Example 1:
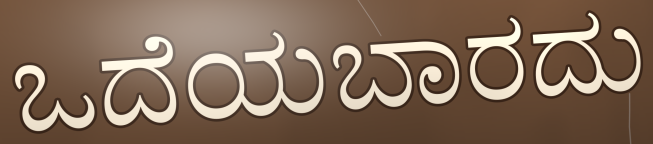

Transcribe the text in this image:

ಒದೆಯಬಾರದು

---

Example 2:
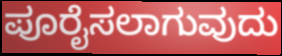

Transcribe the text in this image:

ಪೂರೈಸಲಾಗುವುದು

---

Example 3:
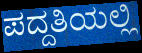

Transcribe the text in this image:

ಪದ್ದತಿಯಲ್ಲಿ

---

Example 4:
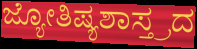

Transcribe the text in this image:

ಜ್ಯೋತಿಷ್ಯಶಾಸ್ತ್ರದ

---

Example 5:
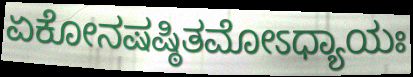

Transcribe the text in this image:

ಏಕೋನಷಷ್ಠಿತಮೋಽಧ್ಯಾಯಃ